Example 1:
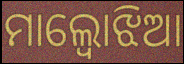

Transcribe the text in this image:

ମାଲ୍ବୋଝିଆ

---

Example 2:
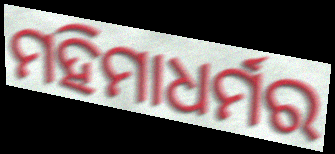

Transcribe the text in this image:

ମହିମାଧର୍ମର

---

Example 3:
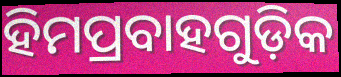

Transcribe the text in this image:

ହିମପ୍ରବାହଗୁଡ଼ିକ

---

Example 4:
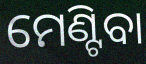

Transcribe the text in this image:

ମେଣ୍ଟିବା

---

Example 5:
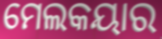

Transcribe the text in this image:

ମେଲକୟାର